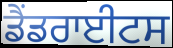
ਡੈਂਡਰਾਈਟਸ